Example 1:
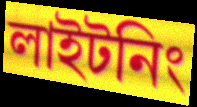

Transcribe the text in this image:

লাইটনিং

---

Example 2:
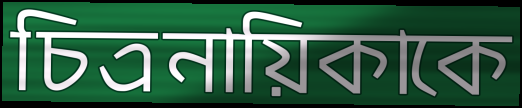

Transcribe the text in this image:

চিত্রনায়িকাকে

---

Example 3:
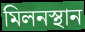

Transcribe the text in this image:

মিলনস্থান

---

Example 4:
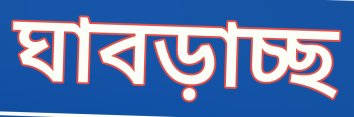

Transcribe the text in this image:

ঘাবড়াচ্ছ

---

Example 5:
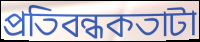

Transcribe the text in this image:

প্রতিবন্ধকতাটা